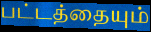
பட்டத்தையும்